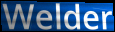
Welder